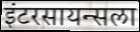
इंटरसायन्सला